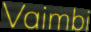
Vaimbi